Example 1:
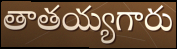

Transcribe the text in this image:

తాతయ్యగారు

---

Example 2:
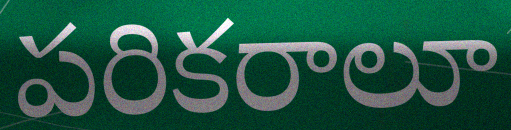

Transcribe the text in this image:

పరికరాలూ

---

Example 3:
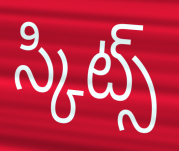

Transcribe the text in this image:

స్కిట్స్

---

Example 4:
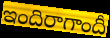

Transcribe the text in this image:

ఇందిరాగాందీ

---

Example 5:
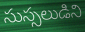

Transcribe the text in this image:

సుస్సలుడిని